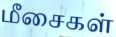
மீசைகள்